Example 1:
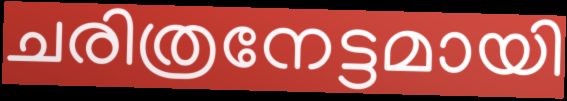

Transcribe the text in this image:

ചരിത്രനേട്ടമായി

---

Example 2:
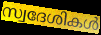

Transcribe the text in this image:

സ്വദേശികൾ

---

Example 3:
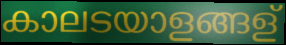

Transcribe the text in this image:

കാലടയാളങ്ങള്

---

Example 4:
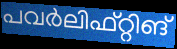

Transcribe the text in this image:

പവർലിഫ്റ്റിങ്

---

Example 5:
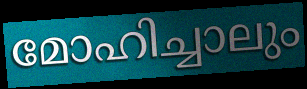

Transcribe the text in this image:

മോഹിച്ചാലും